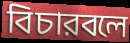
বিচারবলে